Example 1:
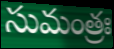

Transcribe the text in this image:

సుమంత్రః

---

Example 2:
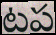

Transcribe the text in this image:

టప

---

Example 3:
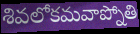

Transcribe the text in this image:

శివలోకమవాప్నోతి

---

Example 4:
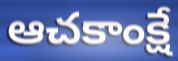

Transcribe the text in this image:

ఆచకాంక్షే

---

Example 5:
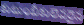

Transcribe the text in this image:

కుటుంబీకులెవరైన